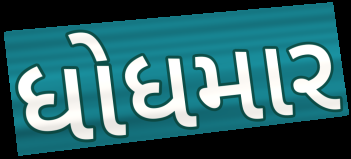
ધોધમાર